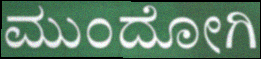
ಮುಂದೋಗಿ